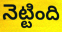
నెట్టింది